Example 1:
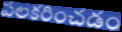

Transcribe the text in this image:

పలకరించడం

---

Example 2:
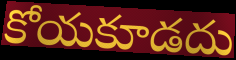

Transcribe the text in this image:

కోయకూడదు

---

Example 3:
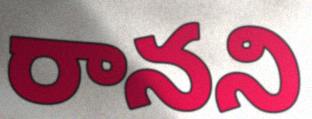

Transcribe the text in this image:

రానని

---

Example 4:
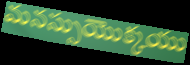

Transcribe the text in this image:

మనస్సుయొక్కయు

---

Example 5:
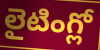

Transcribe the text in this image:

లైటింగ్లో